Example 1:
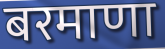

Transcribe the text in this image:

बरमाणा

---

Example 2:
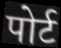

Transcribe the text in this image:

पोर्ट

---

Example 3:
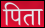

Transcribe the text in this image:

पिता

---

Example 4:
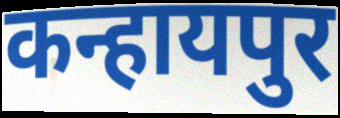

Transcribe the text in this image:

कन्हायपुर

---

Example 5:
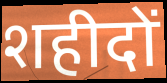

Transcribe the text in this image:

शहीदों